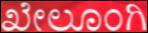
ಖೇಲೂಂಗಿ